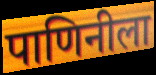
पाणिनीला